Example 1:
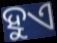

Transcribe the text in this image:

ହୁଏ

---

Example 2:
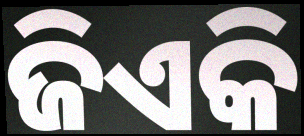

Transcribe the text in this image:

ଜିଏକି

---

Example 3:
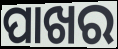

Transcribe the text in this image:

ପାଖର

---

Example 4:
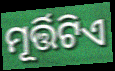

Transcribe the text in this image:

ମୂର୍ତ୍ତିଟିଏ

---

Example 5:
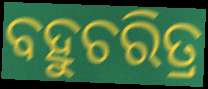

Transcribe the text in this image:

ବହୁଚରିତ୍ର